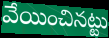
వేయించినట్టు